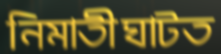
নিমাতীঘাটত